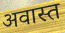
अवास्त